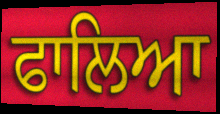
ਫਾਲਿਆ